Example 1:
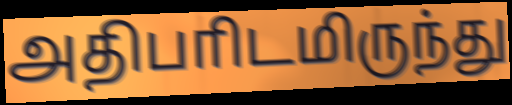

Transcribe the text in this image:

அதிபரிடமிருந்து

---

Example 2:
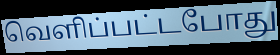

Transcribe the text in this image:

வெளிப்பட்டபோது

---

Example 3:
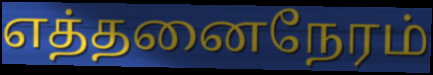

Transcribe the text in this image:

எத்தனைநேரம்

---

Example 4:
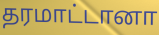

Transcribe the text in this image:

தரமாட்டானா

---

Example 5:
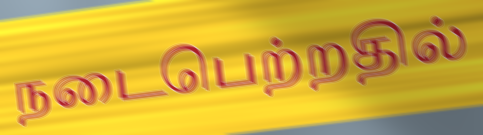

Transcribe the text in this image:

நடைபெற்றதில்